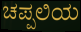
ಚಪ್ಪಲಿಯ